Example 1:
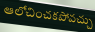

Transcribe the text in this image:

ఆలోచించకపోవచ్చు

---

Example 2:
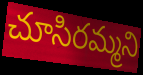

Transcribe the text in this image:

చూసిరమ్మని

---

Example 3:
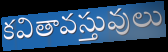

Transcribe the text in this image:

కవితావస్తువులు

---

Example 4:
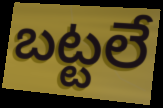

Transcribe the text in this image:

బట్టలే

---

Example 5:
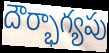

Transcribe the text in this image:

దౌర్భాగ్యపు